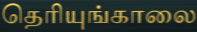
தெரியுங்காலை